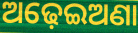
ଅଢ଼େଇଅଣା